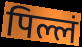
पिल्लं